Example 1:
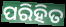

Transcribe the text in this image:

ପରିହିତ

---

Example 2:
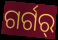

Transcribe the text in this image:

ଗର୍ଗର୍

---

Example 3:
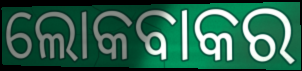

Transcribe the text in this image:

ଲୋକବାକର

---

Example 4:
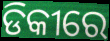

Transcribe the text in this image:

ଡିକୀରେ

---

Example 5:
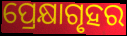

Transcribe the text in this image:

ପ୍ରେକ୍ଷାଗୃହର